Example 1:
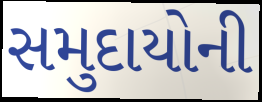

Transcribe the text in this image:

સમુદાયોની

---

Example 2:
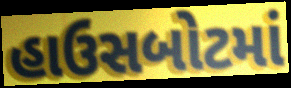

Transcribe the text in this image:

હાઉસબોટમાં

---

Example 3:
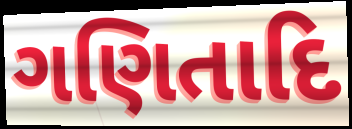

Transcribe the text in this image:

ગણિતાદિ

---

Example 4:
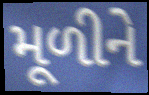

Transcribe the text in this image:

મૂળીને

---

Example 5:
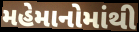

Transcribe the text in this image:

મહેમાનોમાંથી